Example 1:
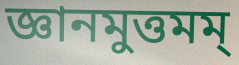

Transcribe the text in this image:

জ্ঞানমুত্তমম্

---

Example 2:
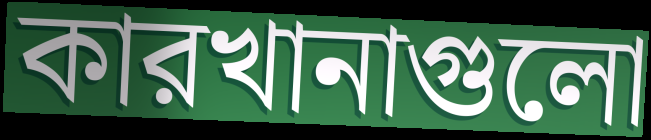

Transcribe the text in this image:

কারখানাগুলো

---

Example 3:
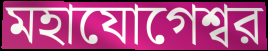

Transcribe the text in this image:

মহাযোগেশ্বর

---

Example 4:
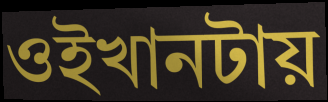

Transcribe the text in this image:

ওইখানটায়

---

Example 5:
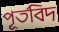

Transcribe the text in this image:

পূর্তবিদ